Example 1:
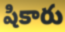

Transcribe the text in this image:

షికారు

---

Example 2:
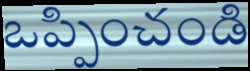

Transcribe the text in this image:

ఒప్పించండి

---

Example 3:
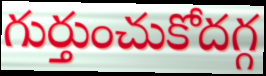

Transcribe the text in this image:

గుర్తుంచుకోదగ్గ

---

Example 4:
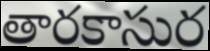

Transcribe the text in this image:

తారకాసుర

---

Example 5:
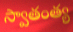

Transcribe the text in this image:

స్వాతంత్య